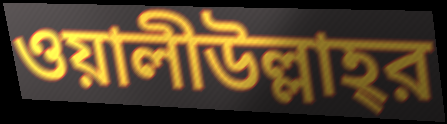
ওয়ালীউল্লাহ্‌র